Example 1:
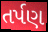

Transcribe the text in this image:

તર્પણ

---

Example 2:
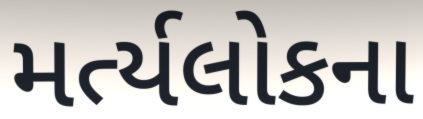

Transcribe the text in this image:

મર્ત્યલોકના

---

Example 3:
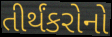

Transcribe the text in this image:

તીર્થંકરોનો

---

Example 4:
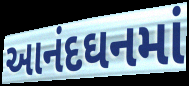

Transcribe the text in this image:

આનંદઘનમાં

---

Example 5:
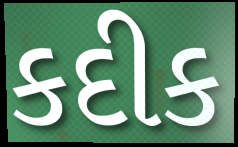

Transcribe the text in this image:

કદીક